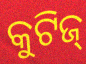
କୁଟିଜ୍